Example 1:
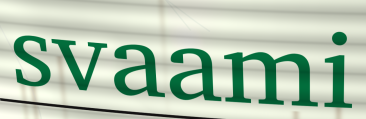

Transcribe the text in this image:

svaami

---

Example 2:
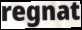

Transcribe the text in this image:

regnat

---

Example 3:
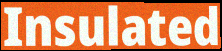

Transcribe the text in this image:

Insulated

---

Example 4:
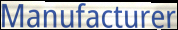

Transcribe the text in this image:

Manufacturer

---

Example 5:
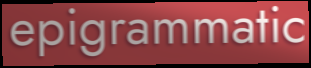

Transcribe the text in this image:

epigrammatic